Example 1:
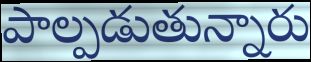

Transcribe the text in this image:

పాల్పడుతున్నారు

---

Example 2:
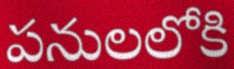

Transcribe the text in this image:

పనులలోకి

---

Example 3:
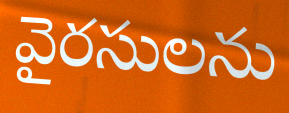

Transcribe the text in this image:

వైరసులను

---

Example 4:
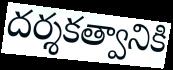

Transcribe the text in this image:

దర్శకత్వానికి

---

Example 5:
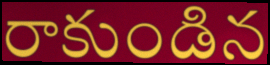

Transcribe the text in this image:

రాకుండిన